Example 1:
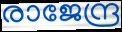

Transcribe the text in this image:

രാജേന്ദ്ര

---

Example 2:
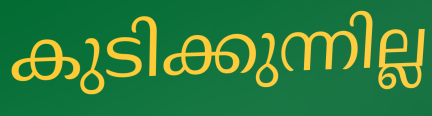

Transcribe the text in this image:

കുടിക്കുന്നില്ല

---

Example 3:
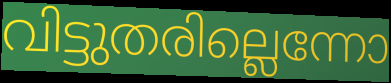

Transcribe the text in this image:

വിട്ടുതരില്ലെന്നോ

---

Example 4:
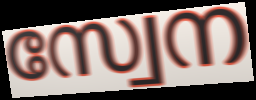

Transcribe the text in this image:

സ്വേന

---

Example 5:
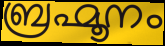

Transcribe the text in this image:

ബ്രഹ്മൂനം